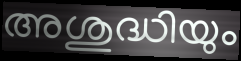
അശുദ്ധിയും